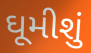
ઘૂમીશું